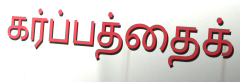
கர்ப்பத்தைக்